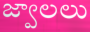
జ్వాలలు